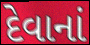
દેવાનાં